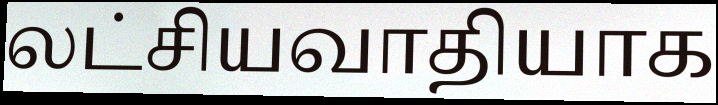
லட்சியவாதியாக